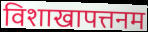
विशाखापत्तनम